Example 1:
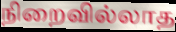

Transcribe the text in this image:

நிறைவில்லாத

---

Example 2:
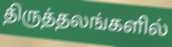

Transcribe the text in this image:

திருத்தலங்களில்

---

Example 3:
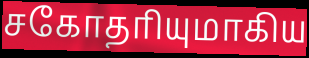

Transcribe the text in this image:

சகோதரியுமாகிய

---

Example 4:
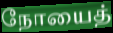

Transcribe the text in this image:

நோயைத்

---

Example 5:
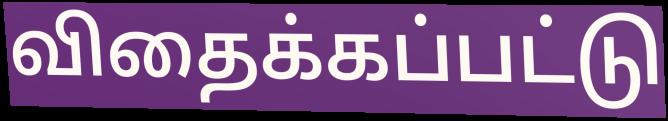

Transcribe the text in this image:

விதைக்கப்பட்டு